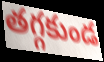
తగ్గకుండ